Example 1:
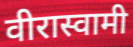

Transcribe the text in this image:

वीरास्वामी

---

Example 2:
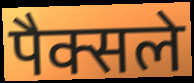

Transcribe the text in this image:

पैक्सले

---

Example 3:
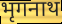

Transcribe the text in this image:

भृगनाथ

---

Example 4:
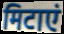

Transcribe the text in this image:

मिटाएं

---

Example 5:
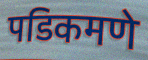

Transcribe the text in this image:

पडिकमणे